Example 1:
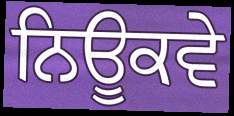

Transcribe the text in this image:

ਨਿਊਕਵੇ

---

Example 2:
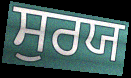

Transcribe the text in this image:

ਸੁਰਯ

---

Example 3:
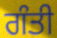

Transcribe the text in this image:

ਗੰਤੀ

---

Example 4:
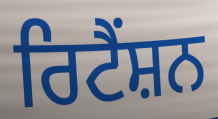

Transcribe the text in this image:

ਰਿਟੈਂਸ਼ਨ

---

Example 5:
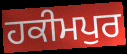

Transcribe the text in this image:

ਹਕੀਮਪੁਰ